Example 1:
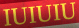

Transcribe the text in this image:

IUIUIU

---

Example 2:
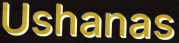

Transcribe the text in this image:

Ushanas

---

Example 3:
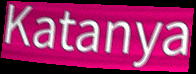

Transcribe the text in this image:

Katanya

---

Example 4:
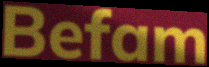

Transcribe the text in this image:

Befam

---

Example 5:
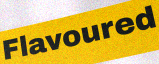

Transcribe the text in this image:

Flavoured